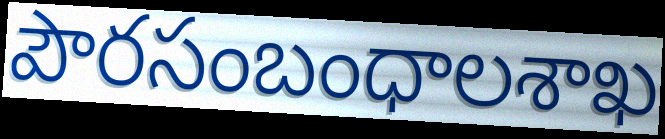
పౌరసంబంధాలశాఖ